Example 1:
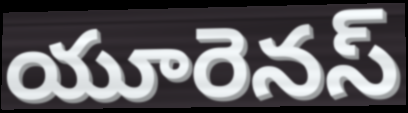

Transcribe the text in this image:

యూరెనస్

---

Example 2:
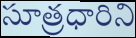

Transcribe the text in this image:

సూత్రధారిని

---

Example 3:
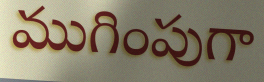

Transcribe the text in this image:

ముగింపుగా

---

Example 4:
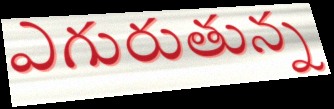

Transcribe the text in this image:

ఎగురుతున్న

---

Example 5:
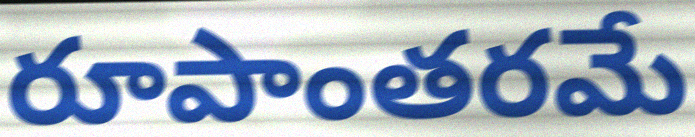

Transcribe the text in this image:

రూపాంతరమే